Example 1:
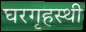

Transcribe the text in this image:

घरगृहस्थी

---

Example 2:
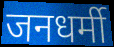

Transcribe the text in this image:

जनधर्मी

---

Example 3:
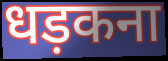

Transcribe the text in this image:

धड़कना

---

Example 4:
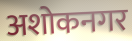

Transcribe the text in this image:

अशोकनगर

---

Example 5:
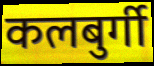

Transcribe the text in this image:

कलबुर्गी